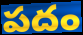
పదం